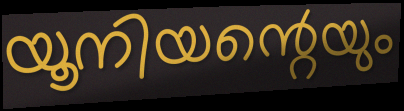
യൂനിയന്റെയും